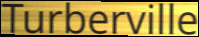
Turberville